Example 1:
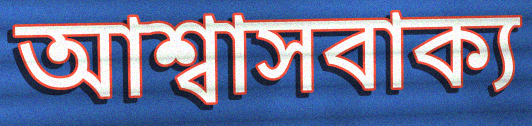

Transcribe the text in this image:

আশ্বাসবাক্য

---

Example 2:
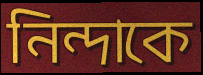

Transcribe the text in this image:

নিন্দাকে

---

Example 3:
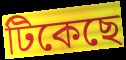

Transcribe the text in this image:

টিকেছে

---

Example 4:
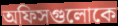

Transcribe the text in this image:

অফিসগুলোকে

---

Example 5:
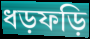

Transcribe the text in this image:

ধড়ফড়ি